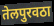
तेलपुरवठा